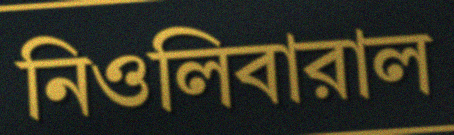
নিওলিবারাল